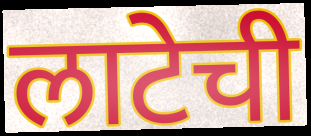
लाटेची